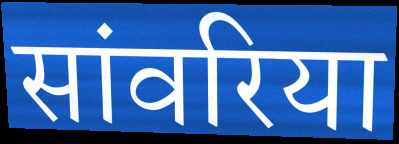
सांवरिया